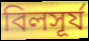
বিলসূর্য